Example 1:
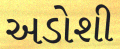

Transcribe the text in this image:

અડોશી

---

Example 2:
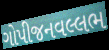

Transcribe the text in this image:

ગોપીજનવલ્લભ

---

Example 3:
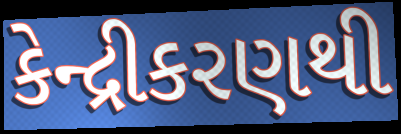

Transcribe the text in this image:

કેન્દ્રીકરણથી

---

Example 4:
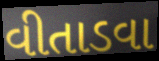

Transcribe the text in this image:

વીતાડવા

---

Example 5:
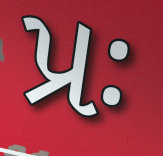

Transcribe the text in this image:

પ્રઃ